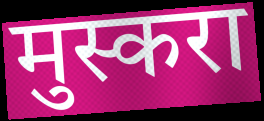
मुस्करा